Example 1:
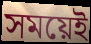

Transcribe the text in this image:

সময়েই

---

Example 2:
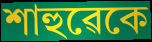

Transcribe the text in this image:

শাহুৱেকে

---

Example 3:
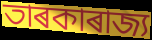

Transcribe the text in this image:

তাৰকাৰাজ্য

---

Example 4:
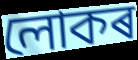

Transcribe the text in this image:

লোকৰ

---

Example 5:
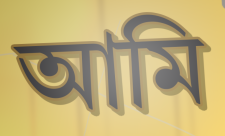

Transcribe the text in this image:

আমি